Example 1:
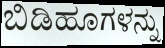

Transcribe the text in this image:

ಬಿಡಿಹೂಗಳನ್ನು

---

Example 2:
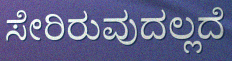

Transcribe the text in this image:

ಸೇರಿರುವುದಲ್ಲದೆ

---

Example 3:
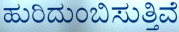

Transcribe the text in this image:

ಹುರಿದುಂಬಿಸುತ್ತಿವೆ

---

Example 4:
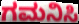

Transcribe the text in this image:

ಗಮನಿಸಿ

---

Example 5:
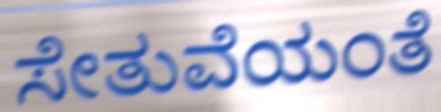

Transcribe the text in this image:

ಸೇತುವೆಯಂತೆ